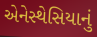
એનેસ્થેસિયાનું